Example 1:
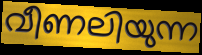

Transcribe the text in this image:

വീണലിയുന്ന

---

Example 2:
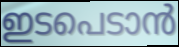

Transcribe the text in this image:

ഇടപെടാൻ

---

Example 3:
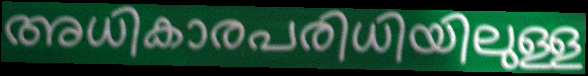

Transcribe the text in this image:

അധികാരപരിധിയിലുള്ള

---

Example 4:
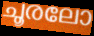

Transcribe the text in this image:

ചൂരലോ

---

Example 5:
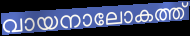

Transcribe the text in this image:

വായനാലോകത്ത്